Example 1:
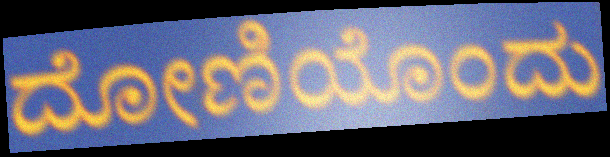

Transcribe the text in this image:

ದೋಣಿಯೊಂದು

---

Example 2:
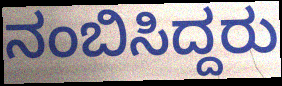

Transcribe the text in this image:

ನಂಬಿಸಿದ್ದರು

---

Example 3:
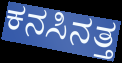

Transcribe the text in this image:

ಕನಸಿನತ್ತ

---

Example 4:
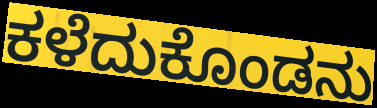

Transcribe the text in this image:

ಕಳೆದುಕೊಂಡನು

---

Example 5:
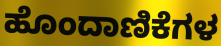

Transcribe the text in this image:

ಹೊಂದಾಣಿಕೆಗಳ